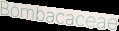
Bombacaceae